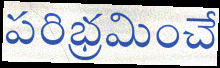
పరిభ్రమించే